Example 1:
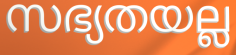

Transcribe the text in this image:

സഭ്യതയല്ല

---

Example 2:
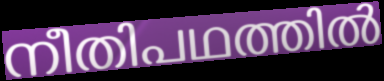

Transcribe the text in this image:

നീതിപഥത്തിൽ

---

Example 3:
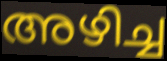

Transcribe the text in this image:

അഴിച്ച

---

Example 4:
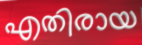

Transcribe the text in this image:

എതിരായ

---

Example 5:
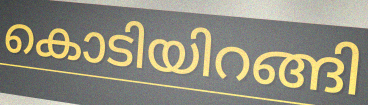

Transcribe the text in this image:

കൊടിയിറങ്ങി